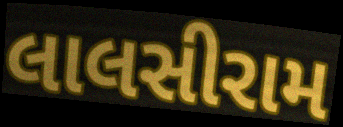
લાલસીરામ